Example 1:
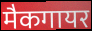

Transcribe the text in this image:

मैकगायर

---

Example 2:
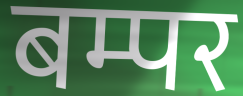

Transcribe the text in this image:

बम्पर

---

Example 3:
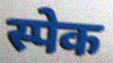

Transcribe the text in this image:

स्पेक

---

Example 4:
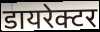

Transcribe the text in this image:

डायरेक्टर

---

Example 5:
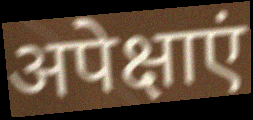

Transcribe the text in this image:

अपेक्षाएं